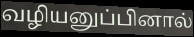
வழியனுப்பினால்